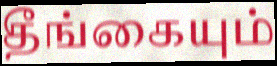
தீங்கையும்